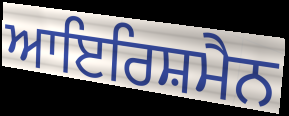
ਆਇਰਿਸ਼ਮੈਨ